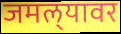
जमल्यावर